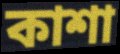
কাশা